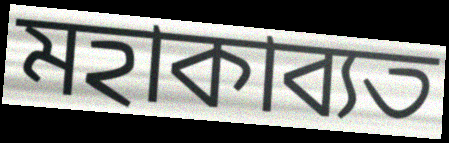
মহাকাব্যত